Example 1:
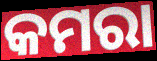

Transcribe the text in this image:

କମରା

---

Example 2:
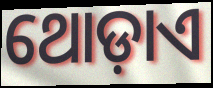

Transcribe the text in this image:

ଥୋଡ଼ାଏ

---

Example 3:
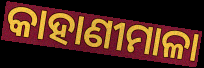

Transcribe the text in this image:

କାହାଣୀମାଳା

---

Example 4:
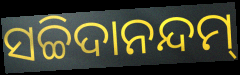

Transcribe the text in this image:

ସଚ୍ଚିଦାନନ୍ଦମ୍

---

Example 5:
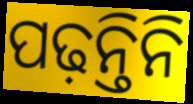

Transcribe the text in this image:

ପଢ଼ନ୍ତିନି